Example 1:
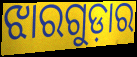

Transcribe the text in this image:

ଝାରଗୁଡ଼ାର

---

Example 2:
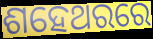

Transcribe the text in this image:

ଶହେଥରରେ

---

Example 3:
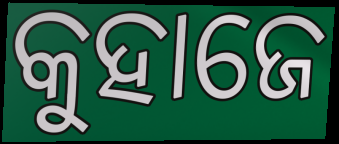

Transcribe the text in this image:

କୁହାଜେ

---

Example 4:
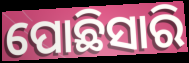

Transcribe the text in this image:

ପୋଛିସାରି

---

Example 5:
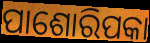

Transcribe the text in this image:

ପାଶୋରିପକା